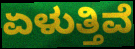
ಏಳುತ್ತಿವೆ